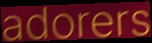
adorers